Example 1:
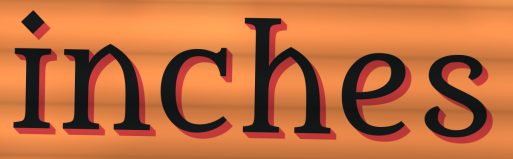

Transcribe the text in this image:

inches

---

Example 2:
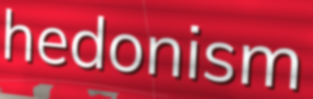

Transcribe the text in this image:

hedonism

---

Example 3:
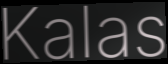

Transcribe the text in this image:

Kalas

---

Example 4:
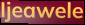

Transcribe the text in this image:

Ijeawele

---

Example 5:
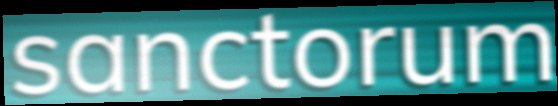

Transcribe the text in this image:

sanctorum